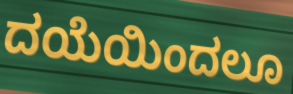
ದಯೆಯಿಂದಲೂ